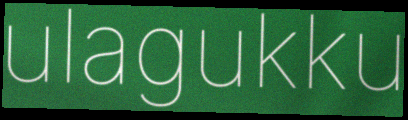
ulagukku